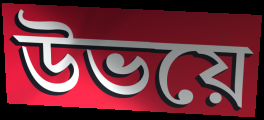
উভয়ে